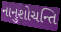
નાનુશોચન્તિ